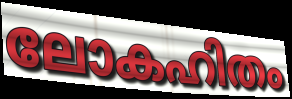
ലോകഹിതം